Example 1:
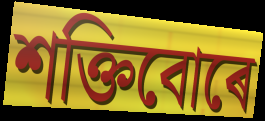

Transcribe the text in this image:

শক্তিবোৰে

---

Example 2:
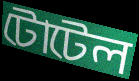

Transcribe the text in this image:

টোটেল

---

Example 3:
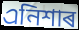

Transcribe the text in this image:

এনিশাৰ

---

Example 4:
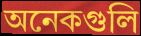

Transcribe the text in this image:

অনেকগুলি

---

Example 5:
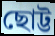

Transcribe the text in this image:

ছোট্ট